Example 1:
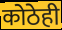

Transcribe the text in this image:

कोठेही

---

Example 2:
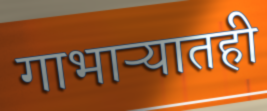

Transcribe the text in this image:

गाभाऱ्यातही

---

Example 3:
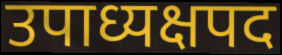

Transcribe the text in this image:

उपाध्यक्षपद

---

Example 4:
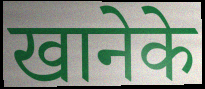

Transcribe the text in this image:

खानेके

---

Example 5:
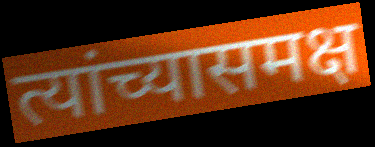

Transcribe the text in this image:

त्यांच्यासमक्ष